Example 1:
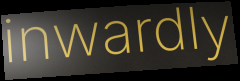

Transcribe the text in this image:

inwardly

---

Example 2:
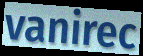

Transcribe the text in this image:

vanirec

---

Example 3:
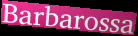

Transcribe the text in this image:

Barbarossa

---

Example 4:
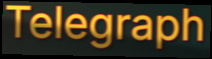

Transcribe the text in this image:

Telegraph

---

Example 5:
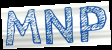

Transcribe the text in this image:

MNP